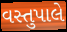
વસ્તુપાલે